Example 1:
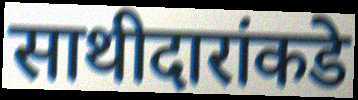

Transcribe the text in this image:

साथीदारांकडे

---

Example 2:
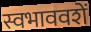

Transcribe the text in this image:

स्वभाववशें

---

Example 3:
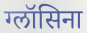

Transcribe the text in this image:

ग्लॉसिना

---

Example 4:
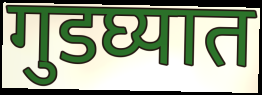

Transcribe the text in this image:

गुडघ्यात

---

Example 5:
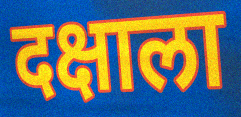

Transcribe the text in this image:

दक्षाला